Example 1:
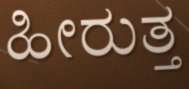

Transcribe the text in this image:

ಹೀರುತ್ತ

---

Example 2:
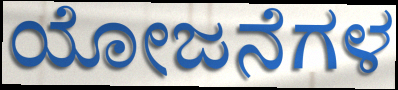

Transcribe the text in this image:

ಯೋಜನೆಗಳ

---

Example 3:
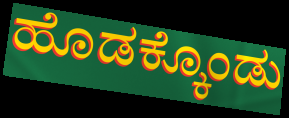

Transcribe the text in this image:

ಹೊಡಕ್ಕೊಂಡು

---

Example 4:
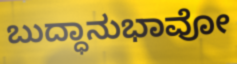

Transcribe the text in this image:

ಬುದ್ಧಾನುಭಾವೋ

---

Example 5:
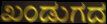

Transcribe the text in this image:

ಖಂಡುಗದ